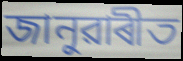
জানুৱাৰীত